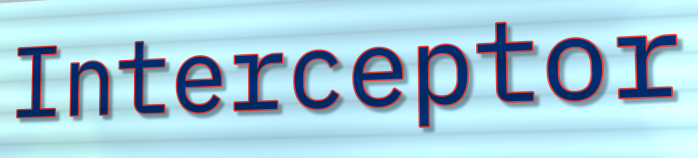
Interceptor